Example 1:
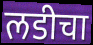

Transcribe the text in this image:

लडीचा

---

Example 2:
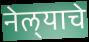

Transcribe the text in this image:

नेल्याचे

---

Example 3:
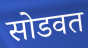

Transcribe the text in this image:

सोडवत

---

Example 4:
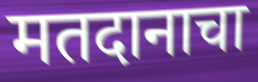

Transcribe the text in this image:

मतदानाचा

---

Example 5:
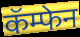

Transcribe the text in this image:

कॅम्फेन